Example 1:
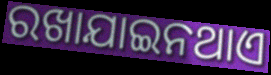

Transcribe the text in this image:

ରଖାଯାଇନଥାଏ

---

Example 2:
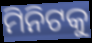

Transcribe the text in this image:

ମିନିଟକୁ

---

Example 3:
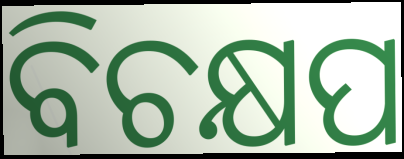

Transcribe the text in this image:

ବିଚକ୍ଷପ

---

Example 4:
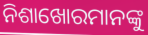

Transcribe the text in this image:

ନିଶାଖୋରମାନଙ୍କୁ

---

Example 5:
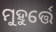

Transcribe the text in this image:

ମୁହୁର୍ତ୍ତେ